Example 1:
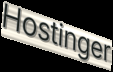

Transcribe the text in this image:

Hostinger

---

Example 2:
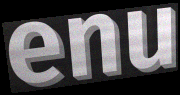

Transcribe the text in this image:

enu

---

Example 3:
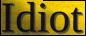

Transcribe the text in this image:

Idiot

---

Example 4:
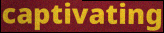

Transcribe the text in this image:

captivating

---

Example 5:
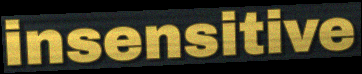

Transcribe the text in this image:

insensitive